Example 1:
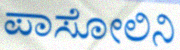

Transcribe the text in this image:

ಪಾಸೋಲಿನಿ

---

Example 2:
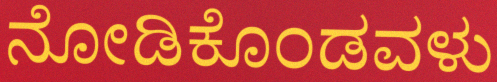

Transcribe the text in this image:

ನೋಡಿಕೊಂಡವಳು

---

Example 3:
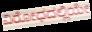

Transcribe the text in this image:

ವಿರೋಧದಲ್ಲಿಯೇ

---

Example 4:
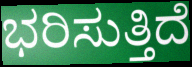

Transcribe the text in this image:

ಭರಿಸುತ್ತಿದೆ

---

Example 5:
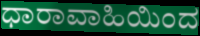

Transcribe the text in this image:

ಧಾರಾವಾಹಿಯಿಂದ